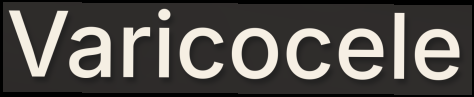
Varicocele